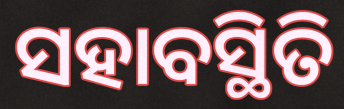
ସହାବସ୍ଥିତି